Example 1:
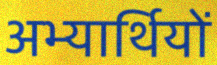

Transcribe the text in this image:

अभ्यार्थियों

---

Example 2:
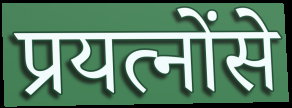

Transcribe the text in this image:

प्रयत्नोंसे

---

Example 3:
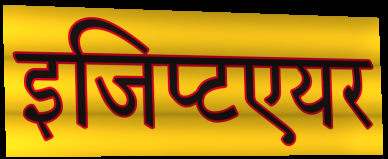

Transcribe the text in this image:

इजिप्टएयर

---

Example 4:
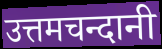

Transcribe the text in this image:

उत्तमचन्दानी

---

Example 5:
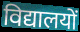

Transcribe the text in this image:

विद्यालयों